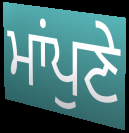
ਮਾਂਪੁਣੇ